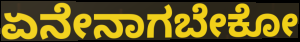
ಏನೇನಾಗಬೇಕೋ